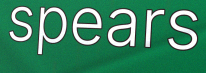
spears